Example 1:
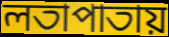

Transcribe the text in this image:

লতাপাতায়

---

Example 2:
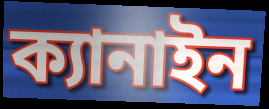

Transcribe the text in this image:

ক্যানাইন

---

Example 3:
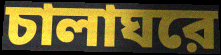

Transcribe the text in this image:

চালাঘরে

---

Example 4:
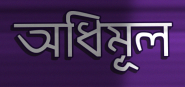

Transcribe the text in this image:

অধিমূল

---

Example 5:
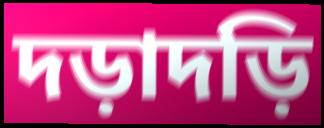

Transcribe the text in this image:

দড়াদড়ি